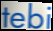
tebi